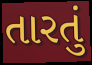
તારતું